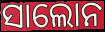
ସାଲୋନ